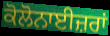
ਕੋਲੋਨਾਈਜ਼ਰਾਂ